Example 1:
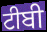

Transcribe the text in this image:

ਟੀਬੀ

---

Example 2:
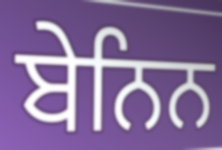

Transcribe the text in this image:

ਬੇਨਿਨ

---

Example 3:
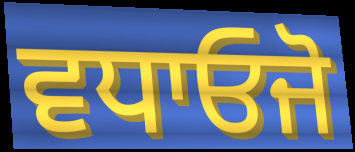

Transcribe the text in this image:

ਵਧਾਓਜੋ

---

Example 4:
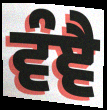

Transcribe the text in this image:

ਵੰਞੈ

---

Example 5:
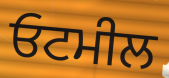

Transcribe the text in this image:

ਓਟਮੀਲ